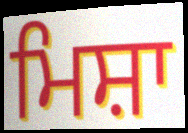
ਮਿਸ਼ਾ